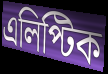
এলিপ্টিক